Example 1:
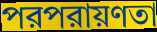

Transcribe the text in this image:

পরপরায়ণতা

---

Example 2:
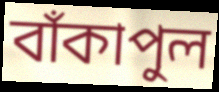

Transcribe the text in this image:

বাঁকাপুল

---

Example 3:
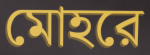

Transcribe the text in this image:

মোহরে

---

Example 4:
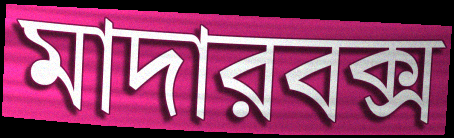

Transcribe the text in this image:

মাদারবক্স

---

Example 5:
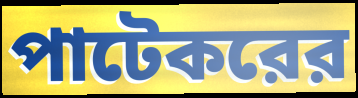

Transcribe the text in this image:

পাটেকরের